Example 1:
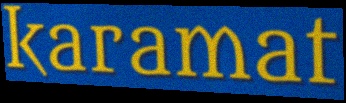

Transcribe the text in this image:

karamat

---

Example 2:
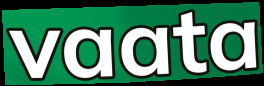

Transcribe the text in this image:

vaata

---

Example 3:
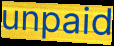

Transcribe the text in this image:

unpaid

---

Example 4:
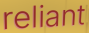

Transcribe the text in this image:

reliant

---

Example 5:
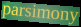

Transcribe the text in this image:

parsimony